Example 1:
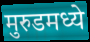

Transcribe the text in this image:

मुरुडमध्ये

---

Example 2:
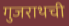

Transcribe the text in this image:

गुजराथची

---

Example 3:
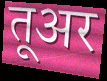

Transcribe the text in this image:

तूअर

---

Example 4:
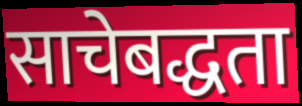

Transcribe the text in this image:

साचेबद्धता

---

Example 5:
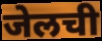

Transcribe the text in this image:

जेलची